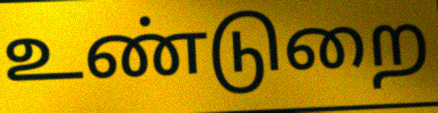
உண்டுறை